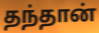
தந்தான்